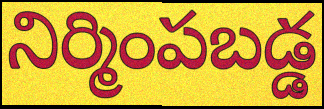
నిర్మింపబడ్డ